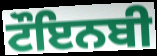
ਟੌਇਨਬੀ